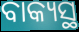
ବାକ୍ୟସ୍ଥ